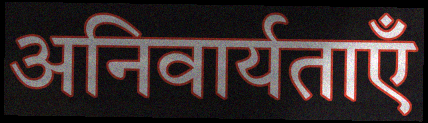
अनिवार्यताएँ